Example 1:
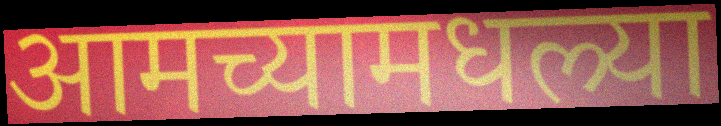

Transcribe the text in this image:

आमच्यामधल्या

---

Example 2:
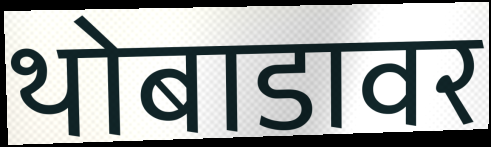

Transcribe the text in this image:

थोबाडावर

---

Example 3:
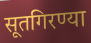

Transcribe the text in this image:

सूतगिरण्या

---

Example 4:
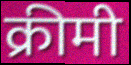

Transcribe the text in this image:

क्रीमी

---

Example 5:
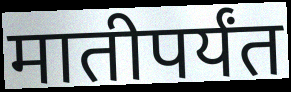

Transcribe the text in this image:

मातीपर्यंत